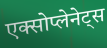
एक्सोप्लेनेट्स